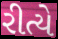
રીત્યે